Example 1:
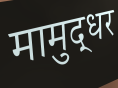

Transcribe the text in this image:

मामुद्धर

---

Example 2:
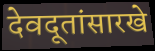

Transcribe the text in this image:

देवदूतांसारखे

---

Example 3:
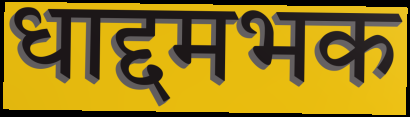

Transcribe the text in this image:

धाद्दमभक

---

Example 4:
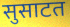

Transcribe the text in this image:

सुसाटत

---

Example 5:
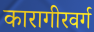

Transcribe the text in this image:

कारागीरवर्ग